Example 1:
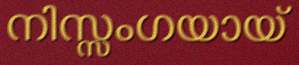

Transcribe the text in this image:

നിസ്സംഗയായ്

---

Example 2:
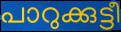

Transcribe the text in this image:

പാറുക്കുട്ടീ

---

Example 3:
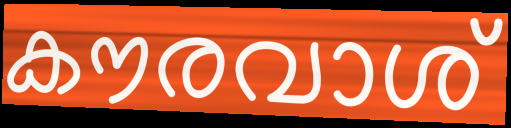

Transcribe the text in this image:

കൗരവാശ്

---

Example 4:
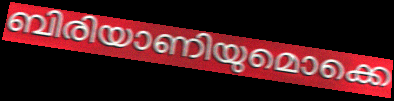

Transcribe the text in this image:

ബിരിയാണിയുമൊക്കെ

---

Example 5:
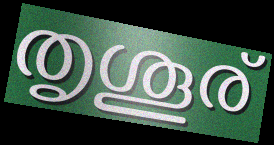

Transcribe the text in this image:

തൃശൂര്